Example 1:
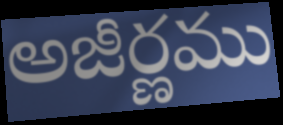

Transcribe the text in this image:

అజీర్ణము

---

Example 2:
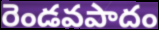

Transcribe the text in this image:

రెండవపాదం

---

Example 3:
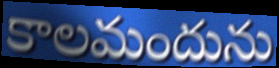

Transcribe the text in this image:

కాలమందును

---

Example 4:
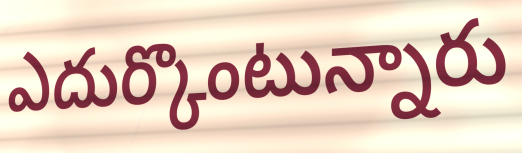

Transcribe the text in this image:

ఎదుర్కొంటున్నారు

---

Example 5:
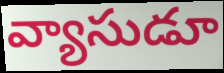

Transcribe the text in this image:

వ్యాసుడూ